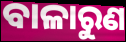
ବାଳାରୁଣ